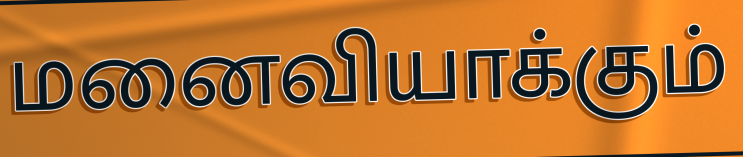
மனைவியாக்கும்